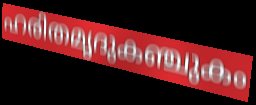
ഹരിതമൃദുകഞ്ചുകം